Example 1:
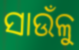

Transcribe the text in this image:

ସାଉଁଳୁ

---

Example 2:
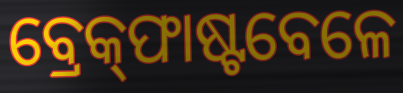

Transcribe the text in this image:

ବ୍ରେକ୍‌ଫାଷ୍ଟବେଳେ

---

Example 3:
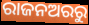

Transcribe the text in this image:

ରାଜନଅରରୁ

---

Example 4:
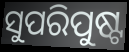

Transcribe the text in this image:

ସୁପରିପୁଷ୍ଟ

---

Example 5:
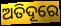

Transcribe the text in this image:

ଅତିଦୂରେ